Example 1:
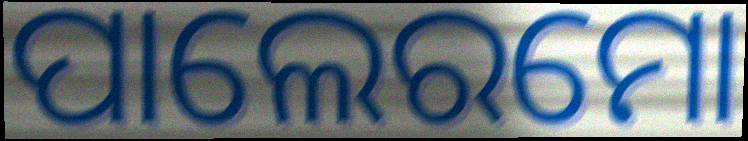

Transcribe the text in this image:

ପାଲେରମୋ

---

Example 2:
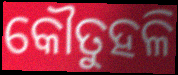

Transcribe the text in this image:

କୌତୁହଳି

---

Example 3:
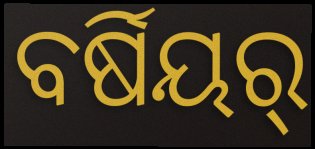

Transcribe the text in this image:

ବର୍ଷିୟର୍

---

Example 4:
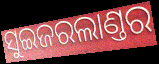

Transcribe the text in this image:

ସୁଇଜରଲାଣ୍ତର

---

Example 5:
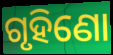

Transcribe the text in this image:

ଗୃହିଣୋ